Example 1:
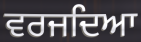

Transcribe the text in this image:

ਵਰਜਦਿਆ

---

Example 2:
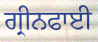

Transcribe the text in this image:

ਗ੍ਰੀਨਫਾਈ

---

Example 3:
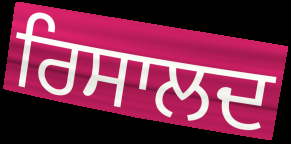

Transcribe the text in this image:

ਰਿਸਾਲਦ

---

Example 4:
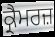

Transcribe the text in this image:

ਕ੍ਰੈਮਰਜ਼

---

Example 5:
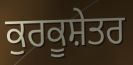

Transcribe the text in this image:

ਕੁਰਕੂਸ਼ੇਤਰ